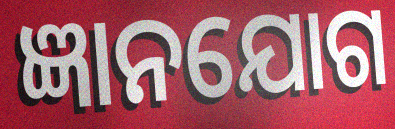
ଜ୍ଞାନଯୋଗ